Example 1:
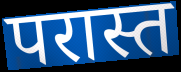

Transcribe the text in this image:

परास्त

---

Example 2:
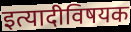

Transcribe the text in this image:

इत्यादीविषयक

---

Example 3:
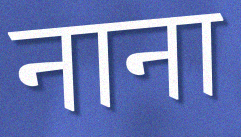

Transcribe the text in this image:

नाना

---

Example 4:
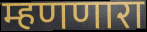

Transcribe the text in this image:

म्हणणारा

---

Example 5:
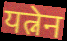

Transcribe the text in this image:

यत्नेन